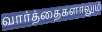
வார்த்தைகளாலும்